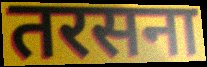
तरसना